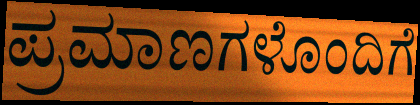
ಪ್ರಮಾಣಗಳೊಂದಿಗೆ